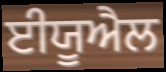
ਈਯੂਐਲ